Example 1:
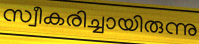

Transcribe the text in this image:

സ്വീകരിച്ചായിരുന്നു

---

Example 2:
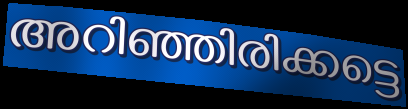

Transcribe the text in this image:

അറിഞ്ഞിരിക്കട്ടെ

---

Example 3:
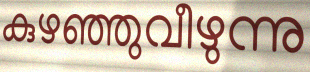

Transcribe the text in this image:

കുഴഞ്ഞുവീഴുന്നു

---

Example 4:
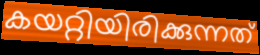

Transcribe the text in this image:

കയറ്റിയിരിക്കുന്നത്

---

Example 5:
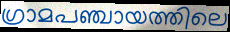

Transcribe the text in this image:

ഗ്രാമപഞ്ചായത്തിലെ